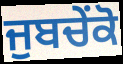
ਜੁਬਚੇਂਕੋ